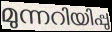
മുന്നറിയിപ്പു